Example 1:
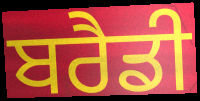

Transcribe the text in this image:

ਬਰੈਡੀ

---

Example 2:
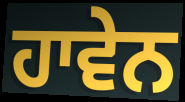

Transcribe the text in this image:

ਹਾਵੇਨ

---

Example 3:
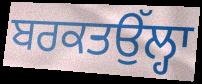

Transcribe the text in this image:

ਬਰਕਤਉੱਲ੍ਹਾ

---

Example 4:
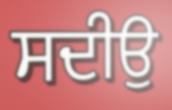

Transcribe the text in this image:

ਸਦੀਉ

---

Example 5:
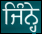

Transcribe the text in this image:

ਜਿੰਨ੍ਹੇ